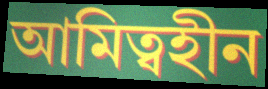
আমিত্বহীন